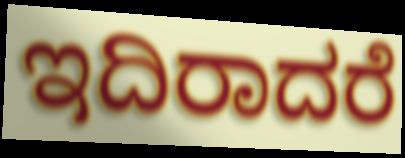
ಇದಿರಾದರೆ